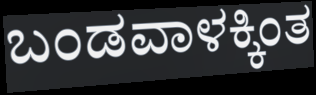
ಬಂಡವಾಳಕ್ಕಿಂತ